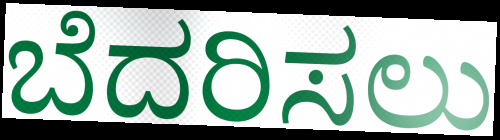
ಬೆದರಿಸಲು